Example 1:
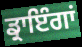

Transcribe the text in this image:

ਡ੍ਰਾਇੰਗਾਂ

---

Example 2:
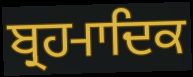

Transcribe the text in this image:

ਬ੍ਰਹ੍ਮਾਦਿਕ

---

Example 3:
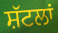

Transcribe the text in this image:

ਸ਼ੱਟਲਾਂ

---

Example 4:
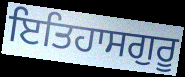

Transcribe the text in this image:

ਇਤਿਹਾਸਗੁਰੂ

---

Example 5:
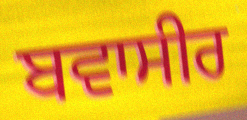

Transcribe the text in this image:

ਬਵਾਸੀਰ